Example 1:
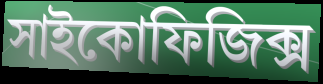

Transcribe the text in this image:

সাইকোফিজিক্স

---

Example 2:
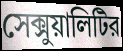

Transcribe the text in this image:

সেক্সুয়ালিটির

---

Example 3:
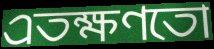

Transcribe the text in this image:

এতক্ষণতো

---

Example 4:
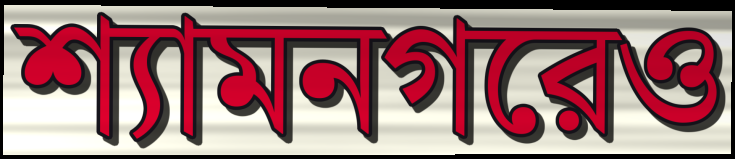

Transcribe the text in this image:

শ্যামনগরেও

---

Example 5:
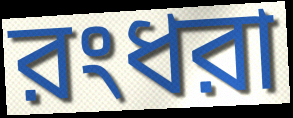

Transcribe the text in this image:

রংধরা